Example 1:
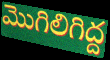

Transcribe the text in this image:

మొగిలిగిద్ద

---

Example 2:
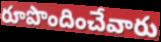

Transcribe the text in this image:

రూపొందించేవారు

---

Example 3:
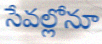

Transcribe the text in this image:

సేవల్లోనూ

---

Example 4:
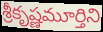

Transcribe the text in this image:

శ్రీకృష్ణమూర్తిని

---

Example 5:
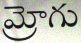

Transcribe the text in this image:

మ్రోగు